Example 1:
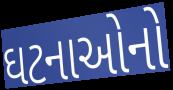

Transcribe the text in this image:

ઘટનાઓનો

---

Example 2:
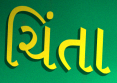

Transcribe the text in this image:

ચિંતા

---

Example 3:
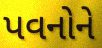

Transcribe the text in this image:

પવનોને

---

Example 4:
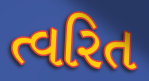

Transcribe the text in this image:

ત્વરિત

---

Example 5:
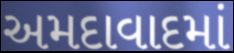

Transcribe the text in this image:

અમદાવાદમાં